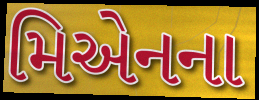
મિએનના